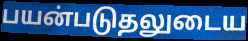
பயன்படுதலுடைய